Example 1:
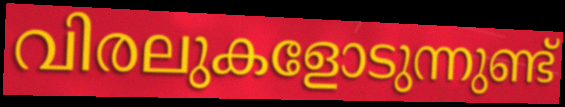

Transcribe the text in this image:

വിരലുകളോടുന്നുണ്ട്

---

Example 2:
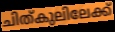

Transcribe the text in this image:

ചിത്കുലിലേക്ക്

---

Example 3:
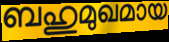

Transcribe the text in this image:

ബഹുമുഖമായ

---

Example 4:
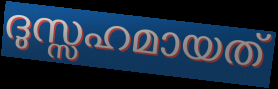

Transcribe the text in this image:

ദുസ്സഹമായത്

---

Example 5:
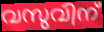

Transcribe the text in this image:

വസുവിന്